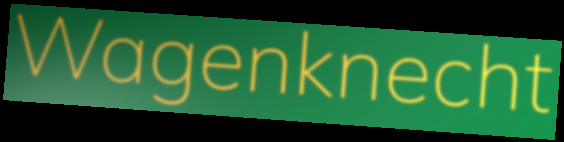
Wagenknecht